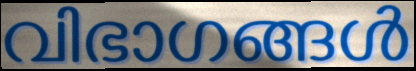
വിഭാഗങ്ങൾ